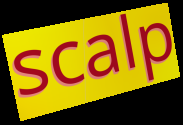
scalp